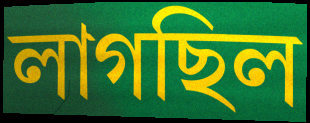
লাগছিল